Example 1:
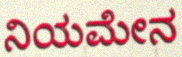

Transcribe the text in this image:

ನಿಯಮೇನ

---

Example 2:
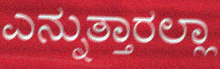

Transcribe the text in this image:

ಎನ್ನುತ್ತಾರಲ್ಲಾ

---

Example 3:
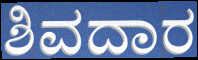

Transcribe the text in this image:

ಶಿವದಾರ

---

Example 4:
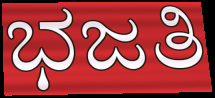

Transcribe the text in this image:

ಭಜತಿ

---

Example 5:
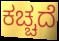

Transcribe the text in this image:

ಕಚ್ಚದೆ